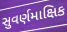
સુવર્ણમાક્ષિક